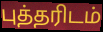
புத்தரிடம்